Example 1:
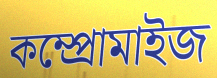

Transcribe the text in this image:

কম্প্রোমাইজ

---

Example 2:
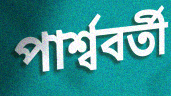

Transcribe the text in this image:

পার্শ্ববর্তী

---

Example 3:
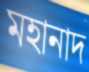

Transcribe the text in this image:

মহানাদ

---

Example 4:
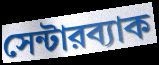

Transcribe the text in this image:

সেন্টারব্যাক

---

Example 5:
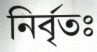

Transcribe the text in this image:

নির্বৃতঃ